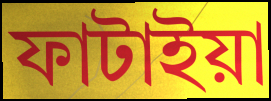
ফাটাইয়া